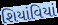
શિયાંવિયાં